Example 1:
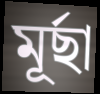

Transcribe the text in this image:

মূর্ছা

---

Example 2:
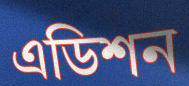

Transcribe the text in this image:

এডিশন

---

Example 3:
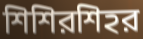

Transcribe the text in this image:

শিশিরশিহর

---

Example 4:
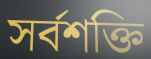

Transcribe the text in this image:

সর্বশক্তি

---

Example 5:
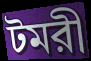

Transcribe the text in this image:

টমরী